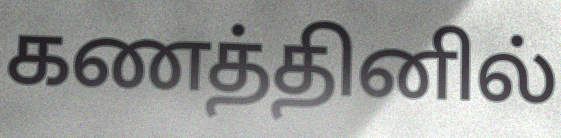
கணத்தினில்